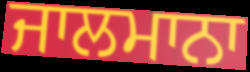
ਜਾਲਮਾਨਾ